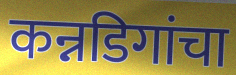
कन्नडिगांचा